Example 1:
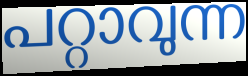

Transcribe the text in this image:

പറ്റാവുന്ന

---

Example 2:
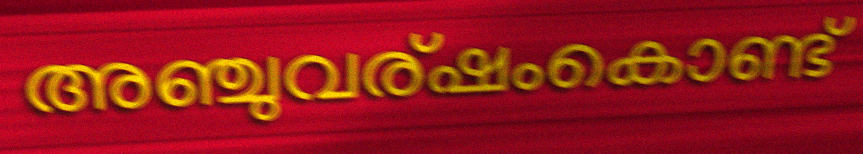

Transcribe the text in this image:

അഞ്ചുവര്ഷംകൊണ്ട്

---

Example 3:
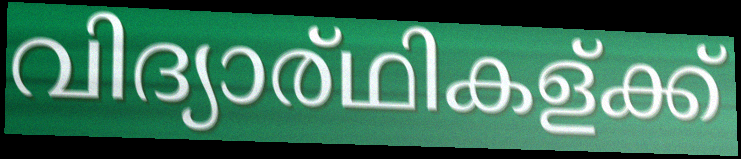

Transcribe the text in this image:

വിദ്യാര്ഥികള്ക്ക്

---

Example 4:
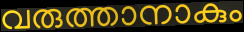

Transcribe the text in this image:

വരുത്താനാകും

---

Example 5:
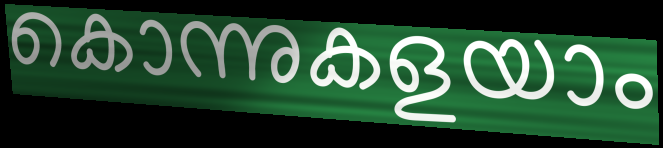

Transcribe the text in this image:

കൊന്നുകളയാം